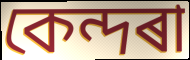
কেন্দৰা